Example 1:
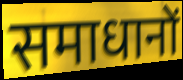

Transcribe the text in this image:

समाधानों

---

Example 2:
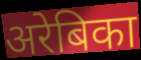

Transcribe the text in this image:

अरेबिका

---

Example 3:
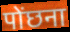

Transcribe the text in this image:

पोंछना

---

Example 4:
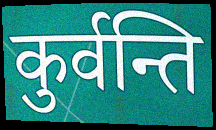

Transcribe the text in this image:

कुर्वन्ति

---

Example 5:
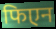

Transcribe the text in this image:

फिएन